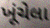
ખૂંચેલા